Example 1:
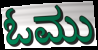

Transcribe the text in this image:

ಓಮು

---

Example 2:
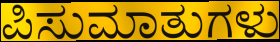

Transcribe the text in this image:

ಪಿಸುಮಾತುಗಳು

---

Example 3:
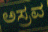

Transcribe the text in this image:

ಅಸ್ರವ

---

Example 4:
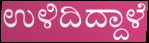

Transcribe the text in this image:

ಉಳಿದಿದ್ದಾಳೆ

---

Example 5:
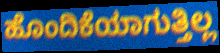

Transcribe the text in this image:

ಹೊಂದಿಕೆಯಾಗುತ್ತಿಲ್ಲ